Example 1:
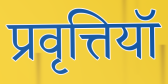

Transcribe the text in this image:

प्रवृत्तियॉ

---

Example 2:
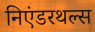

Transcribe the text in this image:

निएंडरथल्स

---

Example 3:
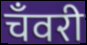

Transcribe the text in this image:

चँवरी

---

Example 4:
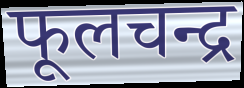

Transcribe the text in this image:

फूलचन्द्र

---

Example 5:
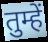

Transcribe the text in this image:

तुम्हें